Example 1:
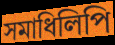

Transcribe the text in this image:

সমাধিলিপি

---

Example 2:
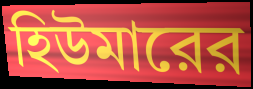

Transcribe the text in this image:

হিউমারের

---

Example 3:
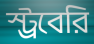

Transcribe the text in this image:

স্ট্রবেরি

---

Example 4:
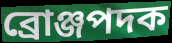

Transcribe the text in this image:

ব্রোঞ্জপদক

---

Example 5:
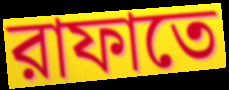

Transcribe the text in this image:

রাফাতে